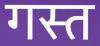
गस्त